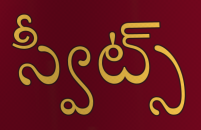
స్వీట్స్